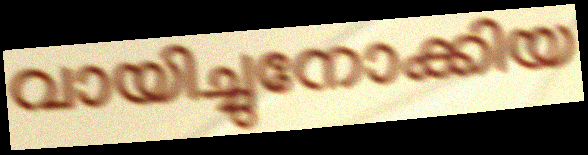
വായിച്ചുനോക്കിയ